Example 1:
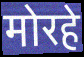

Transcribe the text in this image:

मोरहे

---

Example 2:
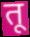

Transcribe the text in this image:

तू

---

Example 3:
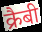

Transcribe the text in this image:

क्रैबी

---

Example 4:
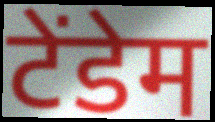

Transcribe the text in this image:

टेंडेम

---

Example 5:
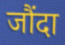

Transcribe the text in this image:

जौंदा